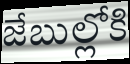
జేబుల్లోకి